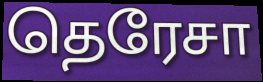
தெரேசா